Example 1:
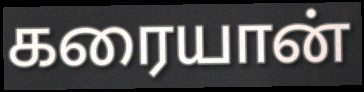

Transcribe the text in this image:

கரையான்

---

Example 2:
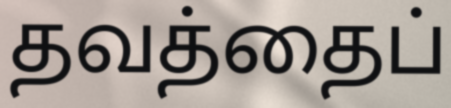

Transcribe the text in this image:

தவத்தைப்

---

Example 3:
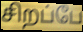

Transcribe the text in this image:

சிறப்பே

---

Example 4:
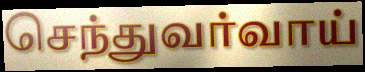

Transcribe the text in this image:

செந்துவர்வாய்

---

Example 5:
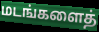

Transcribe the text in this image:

மடங்களைத்